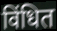
विंधित